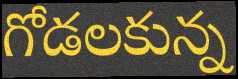
గోడలకున్న